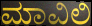
ಮಾವಿಲಿ